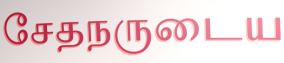
சேதநருடைய